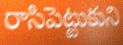
రాసిపెట్టుకుని